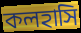
কলহাসি